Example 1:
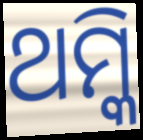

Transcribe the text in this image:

ଥମ୍କି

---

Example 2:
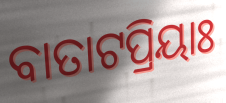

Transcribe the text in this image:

ବାତାଟପ୍ରିୟାଃ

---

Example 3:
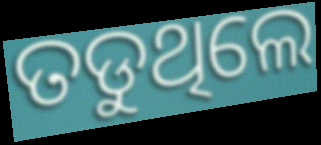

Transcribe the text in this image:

ତଡୁଥିଲେ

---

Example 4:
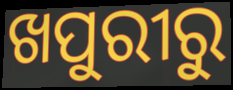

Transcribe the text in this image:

ଖପୁରୀରୁ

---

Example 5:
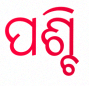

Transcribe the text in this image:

ପଶ୍ଚି